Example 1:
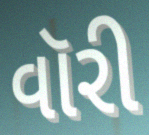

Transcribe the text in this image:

વૉરી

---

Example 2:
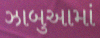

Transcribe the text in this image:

ઝાબુઆમાં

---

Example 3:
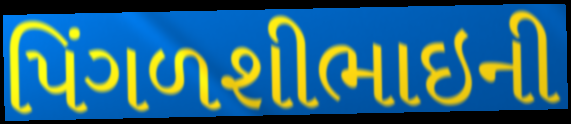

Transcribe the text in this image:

પિંગળશીભાઇની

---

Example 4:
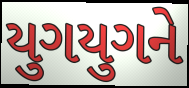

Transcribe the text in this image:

યુગયુગને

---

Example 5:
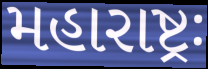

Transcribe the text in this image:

મહારાષ્ટ્રઃ